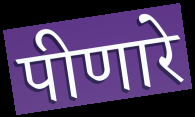
पीणारे